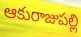
ఆకురాజుపల్లి